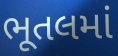
ભૂતલમાં